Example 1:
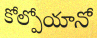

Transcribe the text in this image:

కోల్పోయానో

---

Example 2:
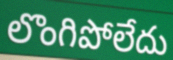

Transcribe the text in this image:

లొంగిపోలేదు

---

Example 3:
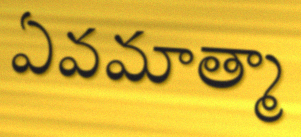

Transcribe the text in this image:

ఏవమాత్మా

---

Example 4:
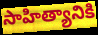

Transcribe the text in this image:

సాహిత్యానికి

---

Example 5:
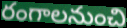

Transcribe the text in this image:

రంగాలనుంచి